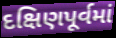
દક્ષિણપૂર્વમાં